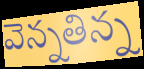
వెన్నతిన్న